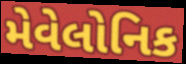
મેવેલોનિક